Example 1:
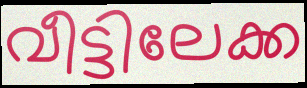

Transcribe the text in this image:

വീട്ടിലേക്ക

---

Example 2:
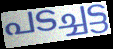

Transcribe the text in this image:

പടച്ചട്ട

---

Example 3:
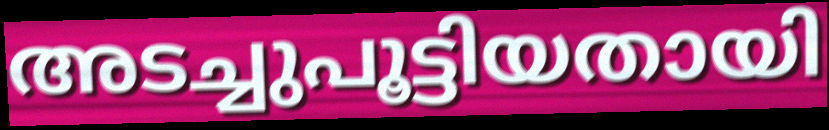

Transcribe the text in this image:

അടച്ചുപൂട്ടിയതായി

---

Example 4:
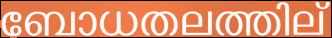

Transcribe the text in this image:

ബോധതലത്തില്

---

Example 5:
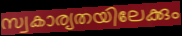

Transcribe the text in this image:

സ്വകാര്യതയിലേക്കും